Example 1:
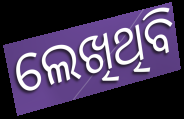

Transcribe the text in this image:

ଲେଖିଥିବି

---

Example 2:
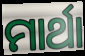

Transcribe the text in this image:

ମାର୍ଥା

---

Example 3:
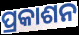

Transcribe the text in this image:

ପ୍ରକାଶନ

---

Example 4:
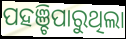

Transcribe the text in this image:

ପହଞ୍ଚିପାରୁଥିଲା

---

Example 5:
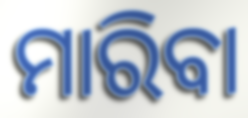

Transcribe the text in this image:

ମାରିବା